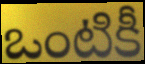
ఒంటికీ